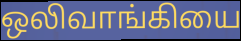
ஒலிவாங்கியை